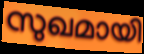
സുഖമായി